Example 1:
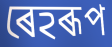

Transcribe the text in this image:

ৰেহৰূপ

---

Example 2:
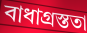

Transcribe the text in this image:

বাধাগ্ৰস্ততা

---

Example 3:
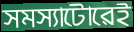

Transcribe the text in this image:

সমস্যাটোৱেই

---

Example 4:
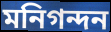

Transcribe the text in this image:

মনিগন্দন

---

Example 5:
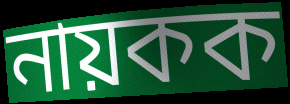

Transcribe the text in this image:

নায়কক